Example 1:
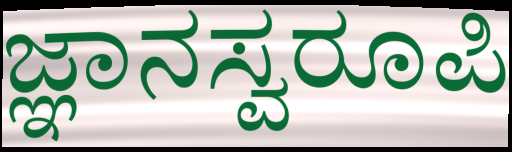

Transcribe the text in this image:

ಜ್ಞಾನಸ್ವರೂಪಿ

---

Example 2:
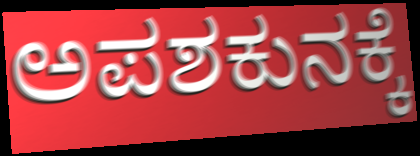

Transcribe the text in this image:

ಅಪಶಕುನಕ್ಕೆ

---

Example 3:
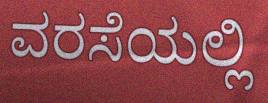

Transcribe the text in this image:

ವರಸೆಯಲ್ಲಿ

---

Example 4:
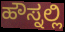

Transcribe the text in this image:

ಹೌಸ್ನಲ್ಲಿ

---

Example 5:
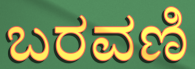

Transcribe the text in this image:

ಬರವಣಿ